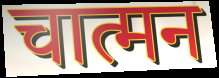
चात्मन